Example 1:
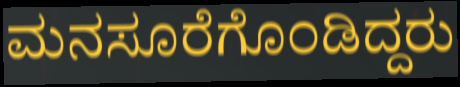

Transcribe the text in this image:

ಮನಸೂರೆಗೊಂಡಿದ್ದರು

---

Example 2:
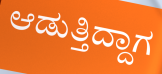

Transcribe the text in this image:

ಆಡುತ್ತಿದ್ದಾಗ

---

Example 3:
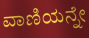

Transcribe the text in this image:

ವಾಣಿಯನ್ನೇ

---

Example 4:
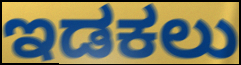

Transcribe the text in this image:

ಇಡಕಲು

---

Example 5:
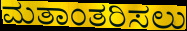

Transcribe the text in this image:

ಮತಾಂತರಿಸಲು